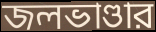
জলভাণ্ডার